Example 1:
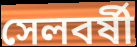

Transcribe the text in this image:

সেলবর্ষী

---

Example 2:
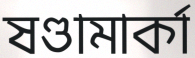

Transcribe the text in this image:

ষণ্ডামার্কা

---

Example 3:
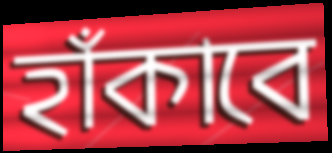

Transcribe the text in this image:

হাঁকাবে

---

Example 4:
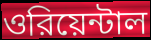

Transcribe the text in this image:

ওরিয়েন্টাল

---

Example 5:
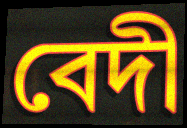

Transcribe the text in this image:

বেদী